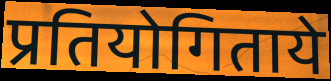
प्रतियोगिताये